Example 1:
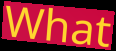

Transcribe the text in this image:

What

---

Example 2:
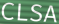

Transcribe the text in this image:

CLSA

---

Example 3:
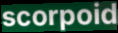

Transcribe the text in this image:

scorpoid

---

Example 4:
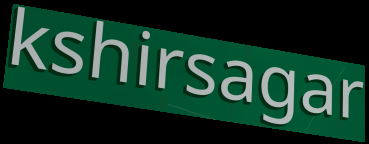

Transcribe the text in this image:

kshirsagar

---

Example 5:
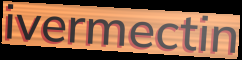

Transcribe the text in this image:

ivermectin